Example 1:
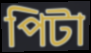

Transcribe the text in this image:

পিটা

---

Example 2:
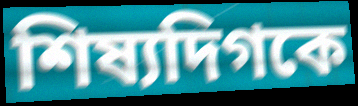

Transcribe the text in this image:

শিষ্যদিগকে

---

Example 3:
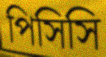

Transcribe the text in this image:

পিসিসি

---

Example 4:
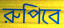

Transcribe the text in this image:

রুপিবে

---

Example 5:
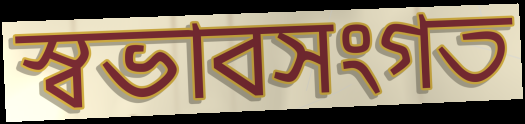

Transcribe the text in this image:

স্বভাবসংগত